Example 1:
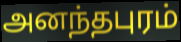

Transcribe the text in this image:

அனந்தபுரம்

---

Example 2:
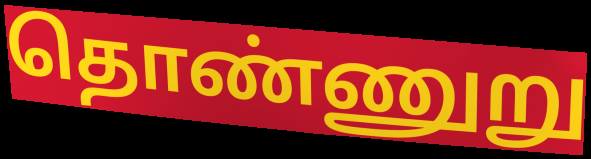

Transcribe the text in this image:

தொண்ணுறு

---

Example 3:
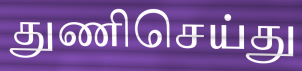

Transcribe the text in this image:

துணிசெய்து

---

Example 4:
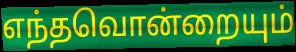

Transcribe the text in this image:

எந்தவொன்றையும்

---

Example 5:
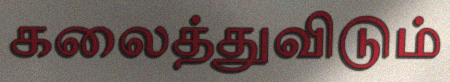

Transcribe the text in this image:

கலைத்துவிடும்